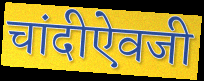
चांदीऐवजी